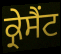
ਕ੍ਰੇਸੈਂਟ